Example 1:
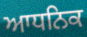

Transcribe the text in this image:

ਆਧਨਿਕ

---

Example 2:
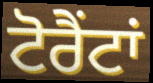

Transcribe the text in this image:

ਟੋਰੈਂਟਾਂ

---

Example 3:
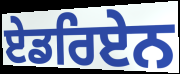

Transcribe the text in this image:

ਏਡਰਿਏਨ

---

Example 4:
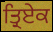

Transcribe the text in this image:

ਤ੍ਰਿਏਕ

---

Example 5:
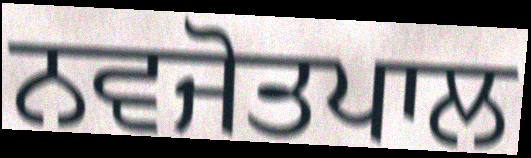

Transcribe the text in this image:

ਨਵਜੋਤਪਾਲ